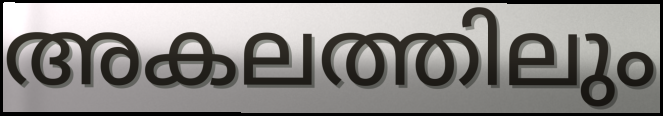
അകലത്തിലും